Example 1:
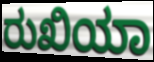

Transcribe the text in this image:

ರುಖಿಯಾ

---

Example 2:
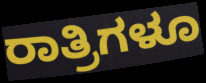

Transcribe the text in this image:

ರಾತ್ರಿಗಳೂ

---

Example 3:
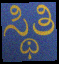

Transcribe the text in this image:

ಸ್ಥಿತಿ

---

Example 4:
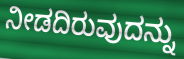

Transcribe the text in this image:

ನೀಡದಿರುವುದನ್ನು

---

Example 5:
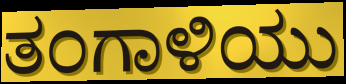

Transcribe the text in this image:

ತಂಗಾಳಿಯು